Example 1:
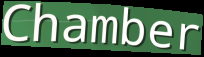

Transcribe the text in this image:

Chamber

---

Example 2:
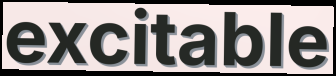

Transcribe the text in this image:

excitable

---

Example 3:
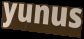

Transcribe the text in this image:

yunus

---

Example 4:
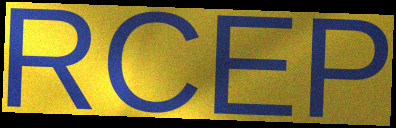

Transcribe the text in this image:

RCEP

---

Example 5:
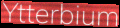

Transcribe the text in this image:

Ytterbium